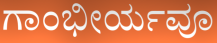
ಗಾಂಭೀರ್ಯವೂ